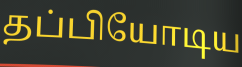
தப்பியோடிய